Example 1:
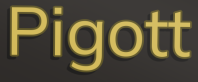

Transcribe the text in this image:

Pigott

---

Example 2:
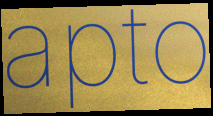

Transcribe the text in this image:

apto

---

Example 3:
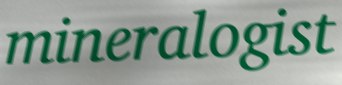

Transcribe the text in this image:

mineralogist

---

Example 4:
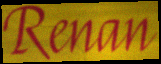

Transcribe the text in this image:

Renan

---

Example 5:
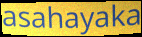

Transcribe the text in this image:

asahayaka